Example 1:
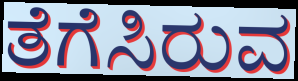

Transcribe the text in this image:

ತೆಗೆಸಿರುವ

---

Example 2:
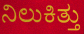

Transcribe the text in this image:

ನಿಲುಕಿತ್ತು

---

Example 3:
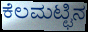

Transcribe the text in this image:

ಕೆಲಮಟ್ಟಿನ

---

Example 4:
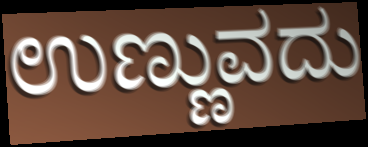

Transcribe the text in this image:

ಉಣ್ಣುವದು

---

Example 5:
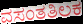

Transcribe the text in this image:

ವಸಂತತಿಲಕ